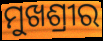
ମୁଖଶ୍ରୀର